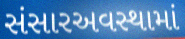
સંસારઅવસ્થામાં